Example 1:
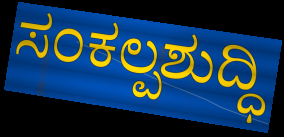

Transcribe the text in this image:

ಸಂಕಲ್ಪಶುದ್ಧಿ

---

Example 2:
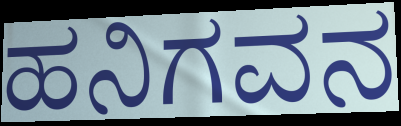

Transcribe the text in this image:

ಹನಿಗವನ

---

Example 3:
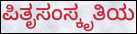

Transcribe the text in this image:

ಪಿತೃಸಂಸ್ಕೃತಿಯ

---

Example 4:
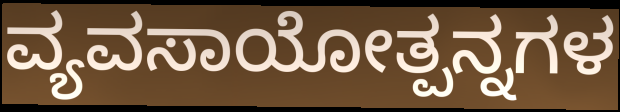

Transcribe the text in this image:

ವ್ಯವಸಾಯೋತ್ಪನ್ನಗಳ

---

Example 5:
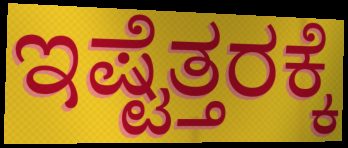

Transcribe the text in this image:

ಇಷ್ಟೆತ್ತರಕ್ಕೆ